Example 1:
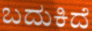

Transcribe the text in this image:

ಬದುಕಿದೆ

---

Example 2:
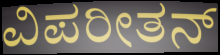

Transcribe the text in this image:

ವಿಪರೀತನ್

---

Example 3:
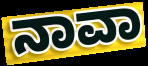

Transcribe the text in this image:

ನಾವಾ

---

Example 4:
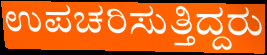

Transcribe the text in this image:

ಉಪಚರಿಸುತ್ತಿದ್ದರು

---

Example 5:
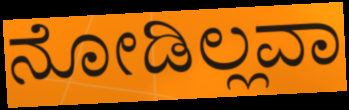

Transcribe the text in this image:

ನೋಡಿಲ್ಲವಾ